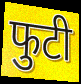
फुटी